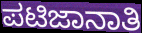
ಪಟಿಜಾನಾತಿ